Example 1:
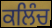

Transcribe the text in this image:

ਕਲਿੰਚ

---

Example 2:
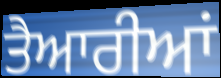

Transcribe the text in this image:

ਤੈਆਰੀਆਂ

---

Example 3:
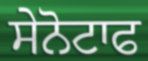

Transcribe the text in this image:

ਸੇਨੋਟਾਫ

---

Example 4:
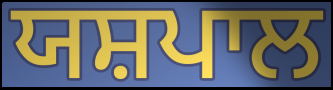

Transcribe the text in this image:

ਯਸ਼ਪਾਲ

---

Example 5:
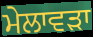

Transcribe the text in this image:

ਮੇਲਾਵੜਾ